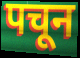
पचून